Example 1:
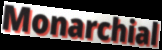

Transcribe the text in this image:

Monarchial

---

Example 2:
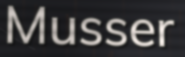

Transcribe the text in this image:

Musser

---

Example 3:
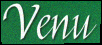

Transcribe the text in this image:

Venu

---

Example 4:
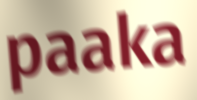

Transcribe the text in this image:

paaka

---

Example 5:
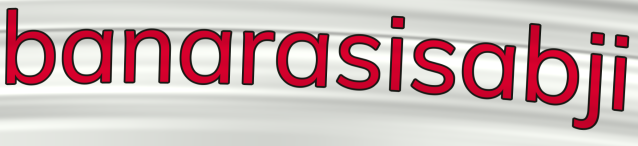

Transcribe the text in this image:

banarasisabji